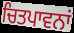
ਚਿਤਪਾਵਨਾਂ